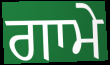
ਗਾਮੇ